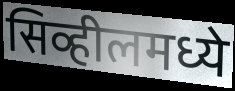
सिव्हीलमध्ये